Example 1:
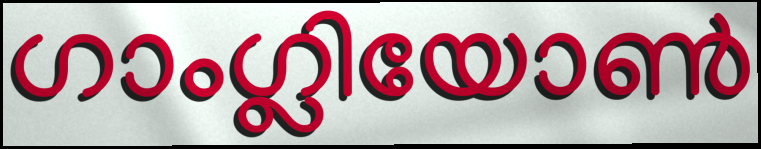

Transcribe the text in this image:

ഗാംഗ്ലിയോൺ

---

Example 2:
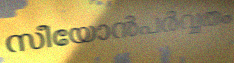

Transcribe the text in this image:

സീയോൻപർവ്വതം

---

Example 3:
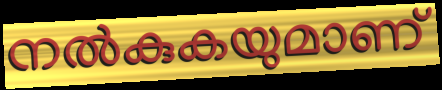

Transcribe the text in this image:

നൽകുകയുമാണ്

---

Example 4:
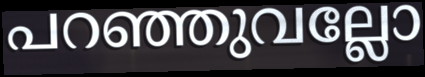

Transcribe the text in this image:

പറഞ്ഞുവല്ലോ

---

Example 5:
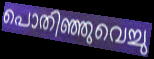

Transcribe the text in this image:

പൊതിഞ്ഞുവെച്ചു